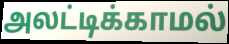
அலட்டிக்காமல்